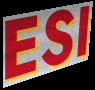
ESI